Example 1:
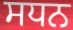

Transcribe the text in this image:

ਸਧਨ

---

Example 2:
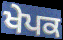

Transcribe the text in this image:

ਖੇਪਕ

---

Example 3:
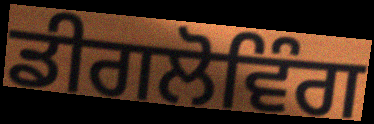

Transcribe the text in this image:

ਡੀਗਲੋਵਿੰਗ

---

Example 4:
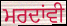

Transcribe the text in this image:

ਮਰਦਾਂਵੀ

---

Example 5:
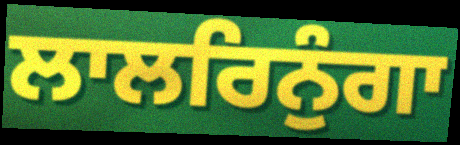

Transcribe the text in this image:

ਲਾਲਰਿਨੁੰਗਾ